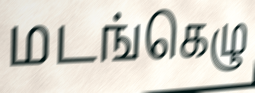
மடங்கெழு